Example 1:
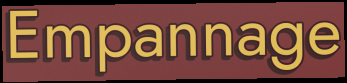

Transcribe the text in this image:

Empannage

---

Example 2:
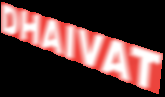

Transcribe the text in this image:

DHAIVAT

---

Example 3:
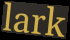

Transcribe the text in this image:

lark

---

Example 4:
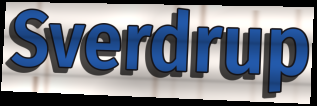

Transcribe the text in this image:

Sverdrup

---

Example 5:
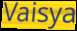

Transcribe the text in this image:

Vaisya